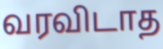
வரவிடாத